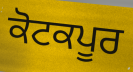
ਕੋਟਕਪੂਰ